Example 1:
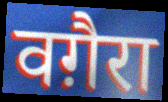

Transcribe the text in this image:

वग़ैरा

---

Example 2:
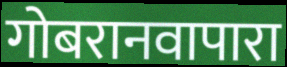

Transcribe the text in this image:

गोबरानवापारा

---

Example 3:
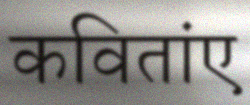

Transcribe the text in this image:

कवितांए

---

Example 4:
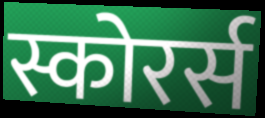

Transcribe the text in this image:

स्कोरर्स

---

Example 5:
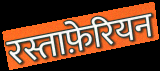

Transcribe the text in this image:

रस्ताफ़ेरियन